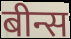
बीन्स